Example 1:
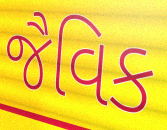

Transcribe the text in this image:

જૈવિક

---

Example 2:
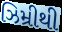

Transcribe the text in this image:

ઝિમ્રીથી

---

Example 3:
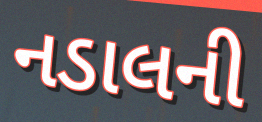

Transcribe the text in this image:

નડાલની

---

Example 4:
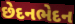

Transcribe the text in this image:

છેદનભેદન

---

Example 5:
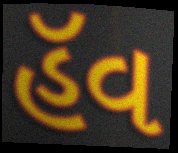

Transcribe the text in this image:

હૅવ